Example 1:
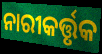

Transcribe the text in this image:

ନାରୀକର୍ତ୍ତୃକ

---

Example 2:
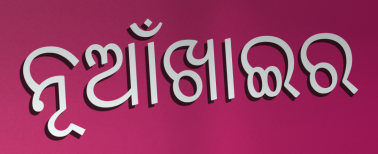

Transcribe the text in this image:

ନୂଆଁଖାଇର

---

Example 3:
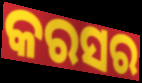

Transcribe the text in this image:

କରସର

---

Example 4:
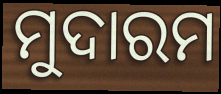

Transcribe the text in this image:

ମୁଦାରମ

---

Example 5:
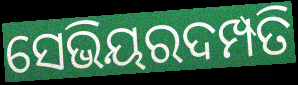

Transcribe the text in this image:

ସେଭିୟରଦମ୍ପତି